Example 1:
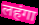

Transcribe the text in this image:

लहंगा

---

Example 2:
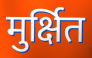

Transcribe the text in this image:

मुर्क्षित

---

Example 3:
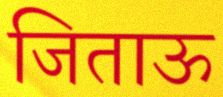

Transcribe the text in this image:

जिताऊ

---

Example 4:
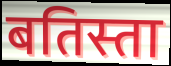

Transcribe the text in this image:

बतिस्ता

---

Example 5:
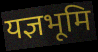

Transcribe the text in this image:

यज्ञभूमि